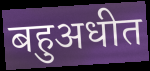
बहुअधीत